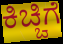
ಕಿಚ್ಚಿಗೆ